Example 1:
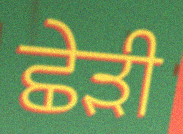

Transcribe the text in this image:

ਛੇੜੀ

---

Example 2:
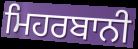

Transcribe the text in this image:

ਮਿਹਰਬਾਨੀ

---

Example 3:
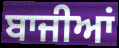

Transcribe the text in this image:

ਬਾਜੀਆਂ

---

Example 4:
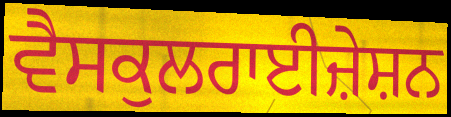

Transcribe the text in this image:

ਵੈਸਕੁਲਰਾਈਜ਼ੇਸ਼ਨ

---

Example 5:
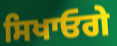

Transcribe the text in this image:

ਸਿਖਾਓਗੇ